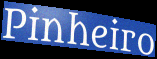
Pinheiro